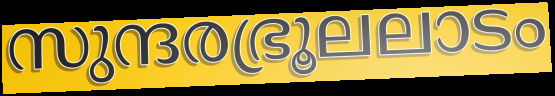
സുന്ദരഭ്രൂലലാടം